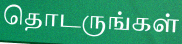
தொடருங்கள்